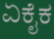
ಏಕೈಕ